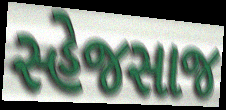
સ્હેજસાજ